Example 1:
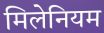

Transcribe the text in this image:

मिलेनियम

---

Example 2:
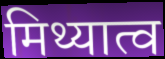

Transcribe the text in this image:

मिथ्यात्व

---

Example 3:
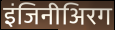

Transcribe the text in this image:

इंजिनीअिरग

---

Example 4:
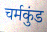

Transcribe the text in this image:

चर्मकुंड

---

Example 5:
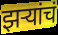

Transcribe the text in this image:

झर्‍यांचं